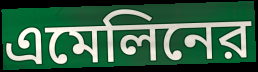
এমেলিনের